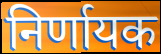
निर्णायक